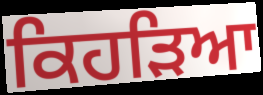
ਕਿਹੜਿਆ